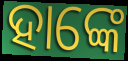
ହାଙ୍କେ